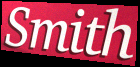
Smith